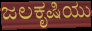
ಜಲಕೃಷಿಯು